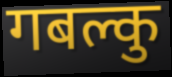
गबल्कु